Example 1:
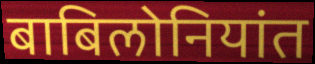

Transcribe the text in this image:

बाबिलोनियांत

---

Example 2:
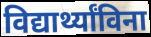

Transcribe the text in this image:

विद्यार्थ्यांविना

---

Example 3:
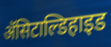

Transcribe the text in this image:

ॲसिटाल्डिहाइड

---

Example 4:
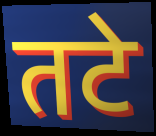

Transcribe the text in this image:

तटे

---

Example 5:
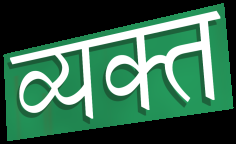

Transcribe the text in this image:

व्यक्‍त